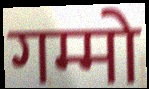
गम्मो